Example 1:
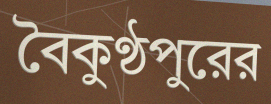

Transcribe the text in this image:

বৈকুণ্ঠপুরের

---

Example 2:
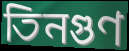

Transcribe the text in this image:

তিনগুণ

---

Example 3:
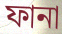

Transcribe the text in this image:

ফানা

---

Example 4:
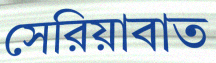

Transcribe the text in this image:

সেরিয়াবাত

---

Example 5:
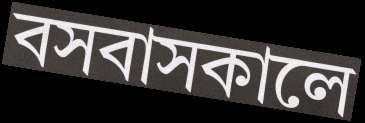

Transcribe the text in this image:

বসবাসকালে